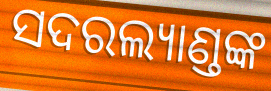
ସଦରଲ୍ୟାଣ୍ଡଙ୍କ